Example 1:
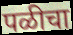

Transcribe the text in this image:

पळीचा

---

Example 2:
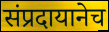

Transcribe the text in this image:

संप्रदायानेच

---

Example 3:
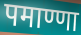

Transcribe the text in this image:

पमाण्णा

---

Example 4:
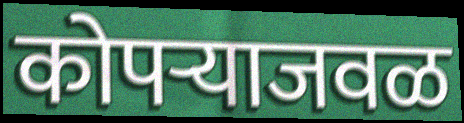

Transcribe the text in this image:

कोपऱ्याजवळ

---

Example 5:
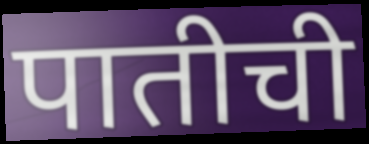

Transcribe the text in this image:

पातीची